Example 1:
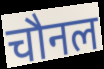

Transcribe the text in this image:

चौनल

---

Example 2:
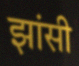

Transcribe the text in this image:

झांसी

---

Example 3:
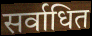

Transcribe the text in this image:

सर्वाधित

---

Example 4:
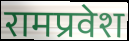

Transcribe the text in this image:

रामप्रवेश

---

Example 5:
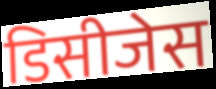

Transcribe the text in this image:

डिसीजेस